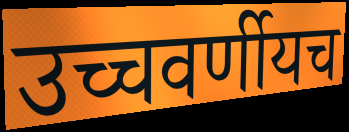
उच्चवर्णीयच